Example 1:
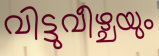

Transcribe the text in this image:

വിട്ടുവീഴ്ചയും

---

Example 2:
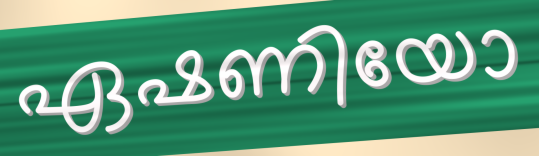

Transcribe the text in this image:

ഏഷണിയോ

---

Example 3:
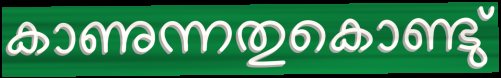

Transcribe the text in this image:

കാണുന്നതുകൊണ്ടു്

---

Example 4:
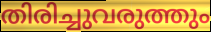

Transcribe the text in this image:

തിരിച്ചുവരുത്തും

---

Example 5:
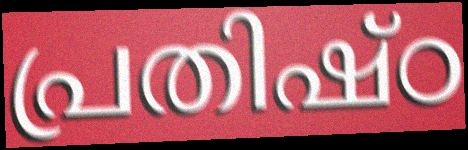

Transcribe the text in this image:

പ്രതിഷ്ഠ